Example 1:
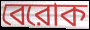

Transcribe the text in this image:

বেরোক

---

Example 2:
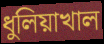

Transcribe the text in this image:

ধুলিয়াখাল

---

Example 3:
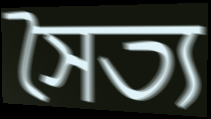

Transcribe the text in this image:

সৈত্য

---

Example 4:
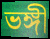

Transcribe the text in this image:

ভঙ্গী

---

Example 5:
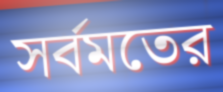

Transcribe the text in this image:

সর্বমতের